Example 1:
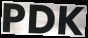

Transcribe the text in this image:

PDK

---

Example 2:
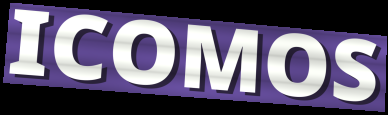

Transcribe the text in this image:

ICOMOS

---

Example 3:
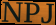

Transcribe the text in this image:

NPJ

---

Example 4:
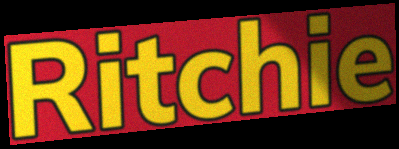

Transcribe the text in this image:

Ritchie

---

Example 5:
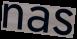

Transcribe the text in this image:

nas